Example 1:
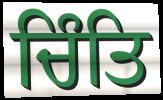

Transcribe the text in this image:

ਚਿੰਤਿ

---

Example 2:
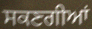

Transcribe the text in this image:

ਸਕਣਗੀਆਂ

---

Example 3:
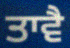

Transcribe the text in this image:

ਤਾਵੈ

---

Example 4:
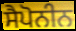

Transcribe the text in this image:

ਸੈਪੋਨੀਨ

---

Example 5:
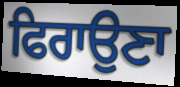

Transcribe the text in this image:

ਫਿਰਾਉਣਾ